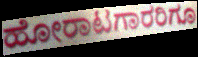
ಹೋರಾಟಗಾರರಿಗೂ